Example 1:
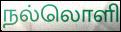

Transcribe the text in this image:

நல்லொளி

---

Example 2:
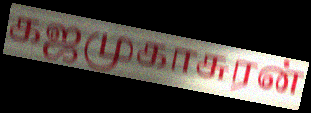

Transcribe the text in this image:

கஜமுகாசுரன்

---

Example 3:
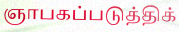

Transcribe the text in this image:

ஞாபகப்படுத்திக்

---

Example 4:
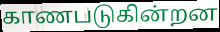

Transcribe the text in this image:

காணபடுகின்றன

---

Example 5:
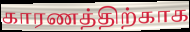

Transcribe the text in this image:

காரணத்திற்காக